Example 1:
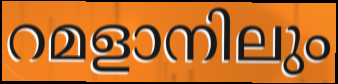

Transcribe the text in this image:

റമളാനിലും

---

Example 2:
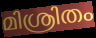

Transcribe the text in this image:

മിശ്രിതം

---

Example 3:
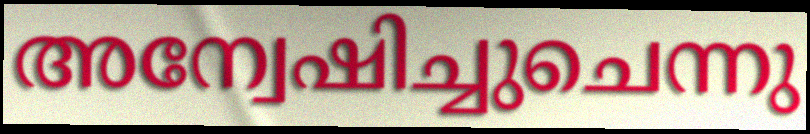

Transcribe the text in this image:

അന്വേഷിച്ചുചെന്നു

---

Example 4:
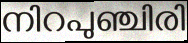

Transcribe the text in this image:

നിറപുഞ്ചിരി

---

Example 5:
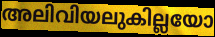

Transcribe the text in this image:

അലിവിയലുകില്ലയോ